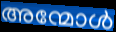
അന്മോൾ